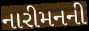
નારીમનની